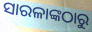
ସାରଳାଙ୍କଠାରୁ